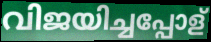
വിജയിച്ചപ്പോള്